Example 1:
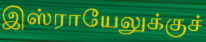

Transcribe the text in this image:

இஸ்ராயேலுக்குச்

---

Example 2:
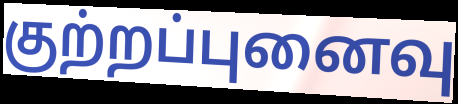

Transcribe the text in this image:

குற்றப்புனைவு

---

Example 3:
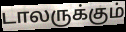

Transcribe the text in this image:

டாலருக்கும்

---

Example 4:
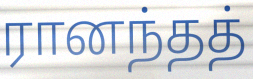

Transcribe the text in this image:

ரானந்தத்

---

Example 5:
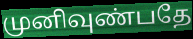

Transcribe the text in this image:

முனிவுண்பதே